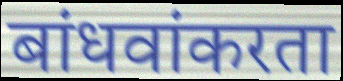
बांधवांकरता